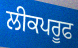
ਲੀਕਪਰੂਫ